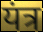
यंत्र